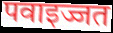
पवाइज्जत